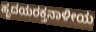
ಹೃದಯರಕ್ತನಾಳೀಯ